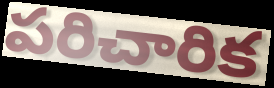
పరిచారిక